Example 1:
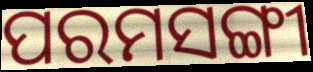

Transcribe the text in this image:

ପରମସଙ୍ଗୀ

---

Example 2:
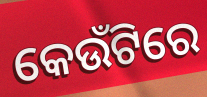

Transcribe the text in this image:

କେଉଁଟିରେ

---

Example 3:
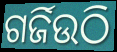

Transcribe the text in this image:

ଗର୍ଜିଉଠି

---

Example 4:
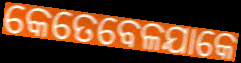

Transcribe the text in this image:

କେତେବେଳଯାକେ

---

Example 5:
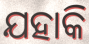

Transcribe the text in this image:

ଯହାକି